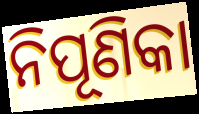
ନିପୂଣିକା